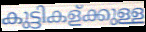
കുട്ടികള്ക്കുള്ള